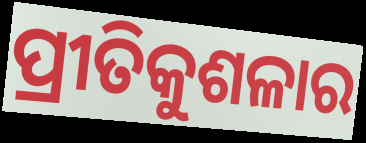
ପ୍ରୀତିକୁଶଳାର